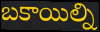
బకాయిల్ని